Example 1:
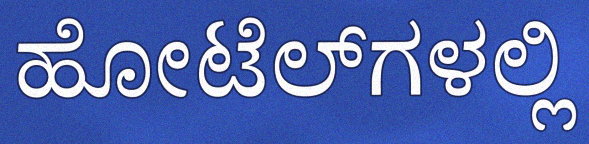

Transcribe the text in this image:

ಹೋಟೆಲ್‌ಗಳಲ್ಲಿ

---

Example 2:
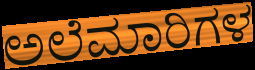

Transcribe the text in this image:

ಅಲೆಮಾರಿಗಳ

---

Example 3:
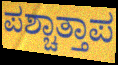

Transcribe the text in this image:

ಪಶ್ಚಾತ್ತಾಪ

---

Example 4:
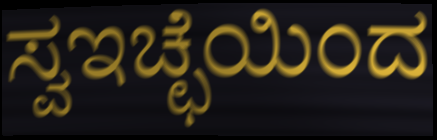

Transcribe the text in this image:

ಸ್ವಇಚ್ಛೆಯಿಂದ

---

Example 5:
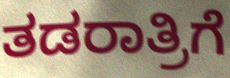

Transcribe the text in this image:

ತಡರಾತ್ರಿಗೆ